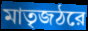
মাতৃজঠরে